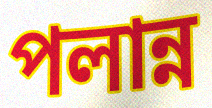
পলান্ন